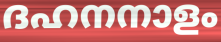
ദഹനനാളം